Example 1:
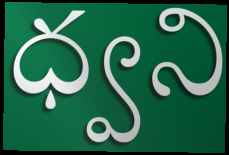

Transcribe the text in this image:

ధ్వని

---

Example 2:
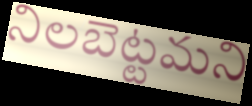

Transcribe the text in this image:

నిలబెట్టమని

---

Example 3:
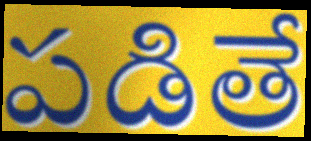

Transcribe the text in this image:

పడితే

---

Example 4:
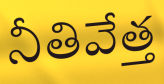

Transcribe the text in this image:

నీతివేత్త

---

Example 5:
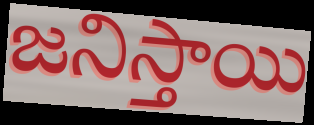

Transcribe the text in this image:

జనిస్తాయి